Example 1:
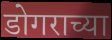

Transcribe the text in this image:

डोगराच्या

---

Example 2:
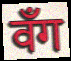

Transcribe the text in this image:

वँग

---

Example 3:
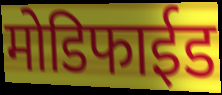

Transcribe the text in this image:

मोडिफाईड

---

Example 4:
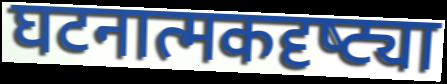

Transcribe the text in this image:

घटनात्मकदृष्ट्या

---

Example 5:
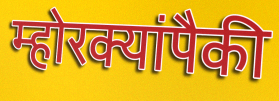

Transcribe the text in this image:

म्होरक्यांपैकी